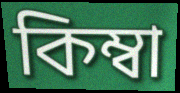
কিম্বা